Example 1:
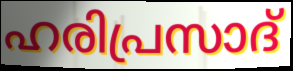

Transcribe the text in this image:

ഹരിപ്രസാദ്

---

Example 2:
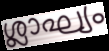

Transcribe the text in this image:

ശ്ലാഘ്യം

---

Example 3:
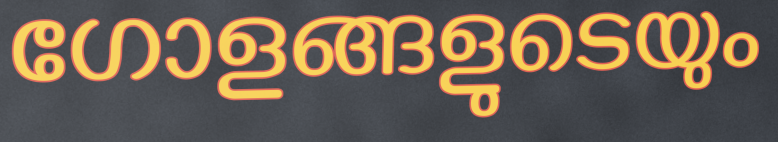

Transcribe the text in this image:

ഗോളങ്ങളുടെയും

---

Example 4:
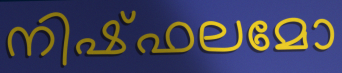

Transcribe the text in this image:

നിഷ്ഫലമോ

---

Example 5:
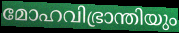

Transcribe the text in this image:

മോഹവിഭ്രാന്തിയും